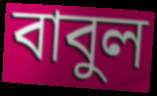
বাবুল